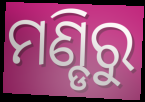
ମଣ୍ଡିରୁ